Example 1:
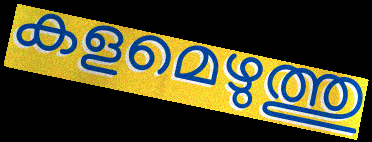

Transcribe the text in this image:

കളമെഴുത്തു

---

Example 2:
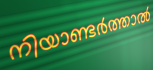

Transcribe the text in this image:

നിയാണ്ടർത്താൽ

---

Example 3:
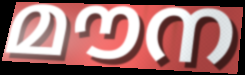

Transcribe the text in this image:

മൗന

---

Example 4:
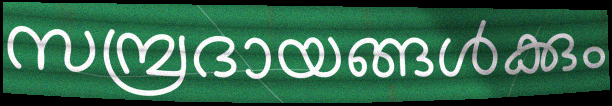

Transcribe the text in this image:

സമ്പ്രദായങ്ങൾക്കും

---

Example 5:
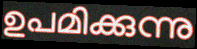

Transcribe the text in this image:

ഉപമിക്കുന്നു